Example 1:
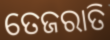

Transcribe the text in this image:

ତେଜରାତି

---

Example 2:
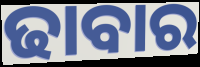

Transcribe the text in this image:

ଢାବାର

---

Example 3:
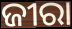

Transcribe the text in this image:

ଜୀରା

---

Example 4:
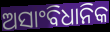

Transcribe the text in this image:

ଅସାଂବିଧାନିକ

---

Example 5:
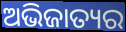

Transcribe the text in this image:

ଅଭିଜାତ୍ୟର